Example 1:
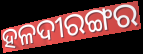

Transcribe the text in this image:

ହଳଦୀରଙ୍ଗର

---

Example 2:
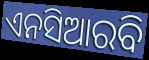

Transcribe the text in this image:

ଏନସିଆରବି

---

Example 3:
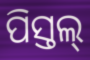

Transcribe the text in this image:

ପିସ୍ତଲ୍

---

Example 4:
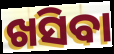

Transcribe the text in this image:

ଖସିବା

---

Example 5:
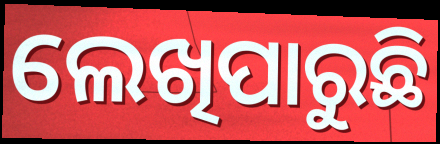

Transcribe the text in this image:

ଲେଖିପାରୁଛି